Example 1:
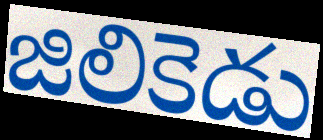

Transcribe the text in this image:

జిలికెడు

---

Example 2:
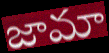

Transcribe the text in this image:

జామా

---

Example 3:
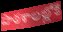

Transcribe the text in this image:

పాఠశాలల్లోకి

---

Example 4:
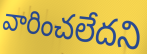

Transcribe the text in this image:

వారించలేదని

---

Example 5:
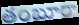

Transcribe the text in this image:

తంబూరా